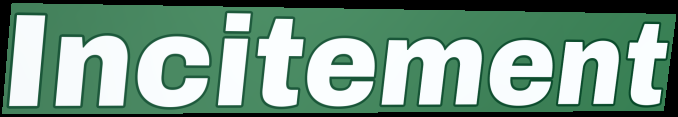
Incitement